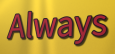
Always